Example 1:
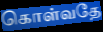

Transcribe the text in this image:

கொள்வதே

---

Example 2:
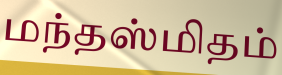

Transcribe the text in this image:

மந்தஸ்மிதம்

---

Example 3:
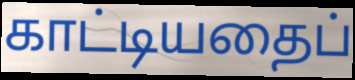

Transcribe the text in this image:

காட்டியதைப்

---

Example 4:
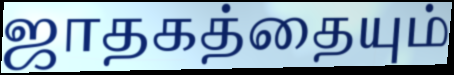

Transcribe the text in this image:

ஜாதகத்தையும்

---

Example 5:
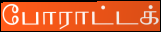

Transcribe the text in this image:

போராட்டக்